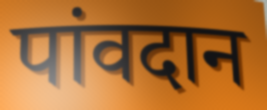
पांवदान